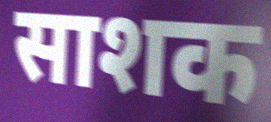
साशक